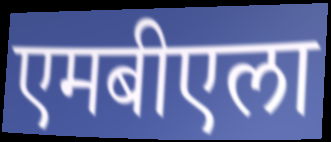
एमबीएला